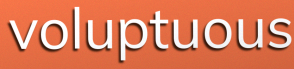
voluptuous